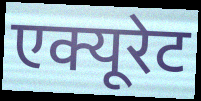
एक्यूरेट